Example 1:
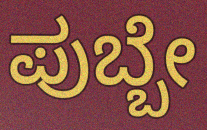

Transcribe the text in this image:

ಪುಬ್ಬೇ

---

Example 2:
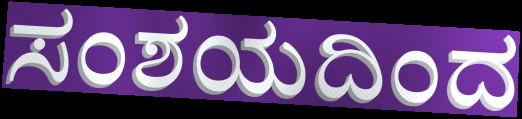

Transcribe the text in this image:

ಸಂಶಯದಿಂದ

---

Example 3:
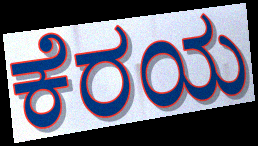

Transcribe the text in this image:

ಕೆರಯ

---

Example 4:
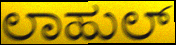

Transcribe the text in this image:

ಲಾಹುಲ್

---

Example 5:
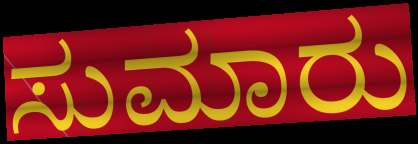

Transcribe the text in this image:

ಸುಮಾರು